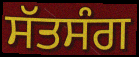
ਸੱਤਸੰਗ